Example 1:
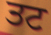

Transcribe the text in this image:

ਤਟ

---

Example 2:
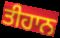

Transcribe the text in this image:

ਤੀਹਾਨ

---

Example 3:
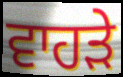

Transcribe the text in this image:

ਵਾਹੜੇ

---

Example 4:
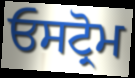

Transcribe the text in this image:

ਓਸਟ੍ਰੋਮ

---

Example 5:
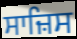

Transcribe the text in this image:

ਸਾਜ਼ਿਸ